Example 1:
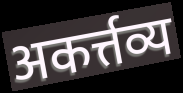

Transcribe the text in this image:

अकर्त्तव्य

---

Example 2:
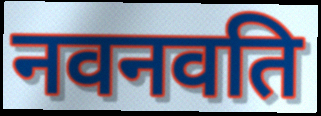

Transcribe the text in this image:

नवनवति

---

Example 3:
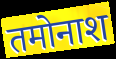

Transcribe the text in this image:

तमोनाश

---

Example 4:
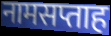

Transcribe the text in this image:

नामसप्ताह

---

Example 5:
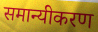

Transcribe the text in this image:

समान्यीकरण